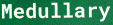
Medullary